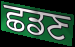
ਛਡਣ